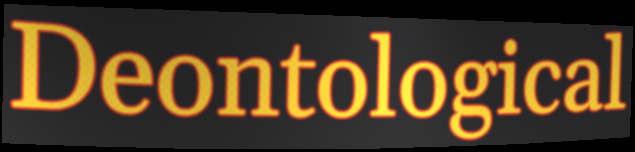
Deontological